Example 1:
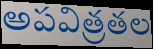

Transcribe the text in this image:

అపవిత్రతల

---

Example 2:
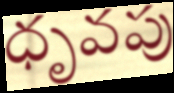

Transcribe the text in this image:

ధృవపు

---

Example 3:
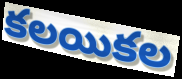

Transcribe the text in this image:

కలయికల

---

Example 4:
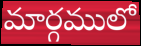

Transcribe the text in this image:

మార్గములో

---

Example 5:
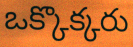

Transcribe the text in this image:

ఒక్కొక్కరు